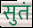
सुतं